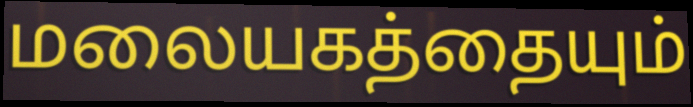
மலையகத்தையும்